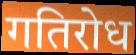
गतिरोध